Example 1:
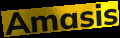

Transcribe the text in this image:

Amasis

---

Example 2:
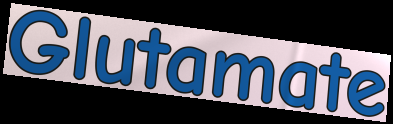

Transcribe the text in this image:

Glutamate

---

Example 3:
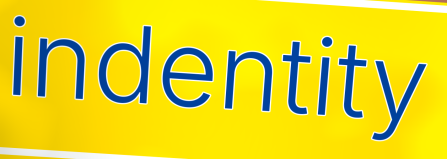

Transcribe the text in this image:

indentity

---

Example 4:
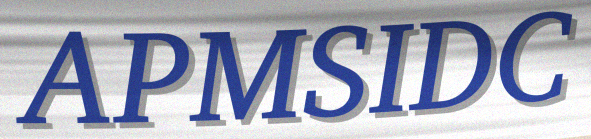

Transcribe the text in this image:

APMSIDC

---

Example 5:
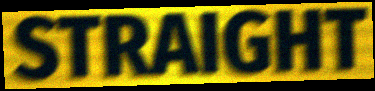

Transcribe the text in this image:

STRAIGHT